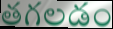
తగలడం